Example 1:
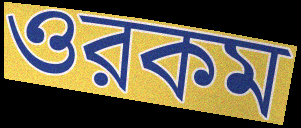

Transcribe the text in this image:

ওরকম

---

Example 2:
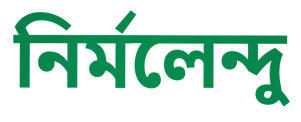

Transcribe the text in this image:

নির্মলেন্দু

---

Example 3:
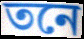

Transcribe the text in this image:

তনে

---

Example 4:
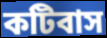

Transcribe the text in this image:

কটিবাস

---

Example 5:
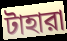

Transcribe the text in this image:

টাহারা